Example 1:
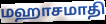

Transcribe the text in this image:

மஹாசமாதி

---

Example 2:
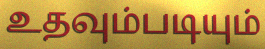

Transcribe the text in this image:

உதவும்படியும்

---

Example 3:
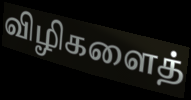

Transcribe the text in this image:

விழிகளைத்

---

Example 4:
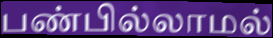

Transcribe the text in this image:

பண்பில்லாமல்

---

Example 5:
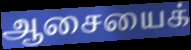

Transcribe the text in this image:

ஆசையைக்